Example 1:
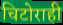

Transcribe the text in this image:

चिटोराही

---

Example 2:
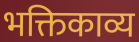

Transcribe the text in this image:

भक्तिकाव्य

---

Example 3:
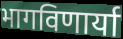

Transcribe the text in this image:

भागविणार्या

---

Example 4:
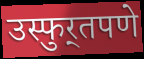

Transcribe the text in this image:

उस्फुर्तपणे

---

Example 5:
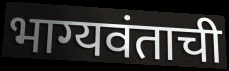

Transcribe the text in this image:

भाग्यवंताची